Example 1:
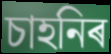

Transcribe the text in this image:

চাহনিৰ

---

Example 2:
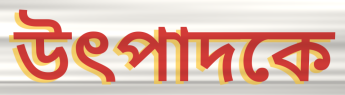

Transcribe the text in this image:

উৎপাদকে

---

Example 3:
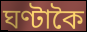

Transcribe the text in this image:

ঘণ্টাকৈ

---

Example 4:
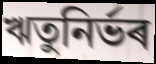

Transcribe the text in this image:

ঋতুনিৰ্ভৰ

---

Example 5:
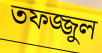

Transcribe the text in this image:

তফজ্জুল